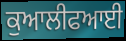
ਕੁਆਲੀਫਆਈ